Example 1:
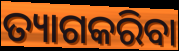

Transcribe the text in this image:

ତ୍ୟାଗକରିବା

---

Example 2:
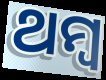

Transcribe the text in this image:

ଥମ୍ବ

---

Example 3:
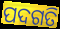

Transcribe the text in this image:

ପଦଗତି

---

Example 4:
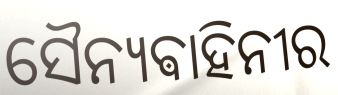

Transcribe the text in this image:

ସୈନ୍ୟଵାହିନୀର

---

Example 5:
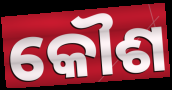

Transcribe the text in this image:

କୌଶ